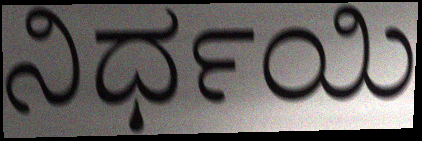
ನಿರ್ಧಯಿ